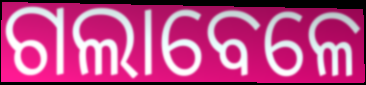
ଗଲାବେଳେ